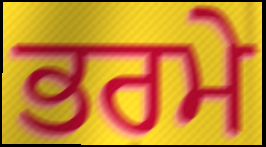
ਭਰਮੇ